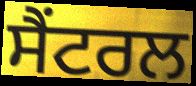
ਸੈਂਟਰਲ